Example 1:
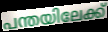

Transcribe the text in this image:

പന്തയിലേക്ക്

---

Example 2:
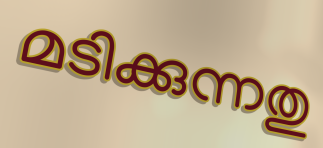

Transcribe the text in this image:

മടിക്കുന്നതു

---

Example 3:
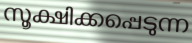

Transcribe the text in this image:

സൂക്ഷിക്കപ്പെടുന്ന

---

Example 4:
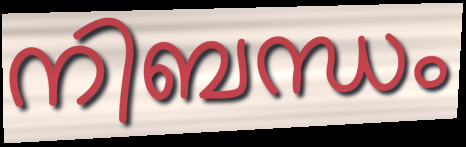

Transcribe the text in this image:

നിബന്ധം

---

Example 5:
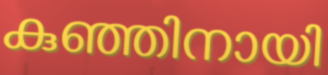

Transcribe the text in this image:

കുഞ്ഞിനായി